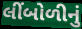
લીંબોળીનું